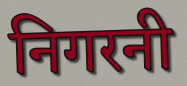
निगरनी